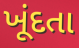
ખૂંદતા